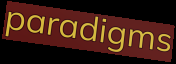
paradigms